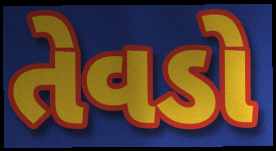
તેવડો